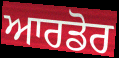
ਆਰਡੋਰ